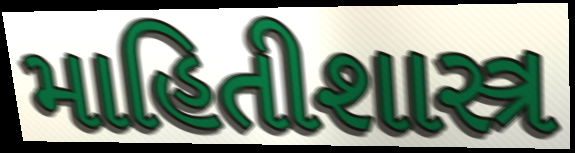
માહિતીશાસ્ત્ર